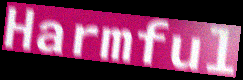
Harmful